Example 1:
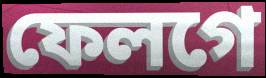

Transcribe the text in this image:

ফেলগে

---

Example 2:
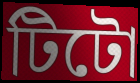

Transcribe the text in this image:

টিটো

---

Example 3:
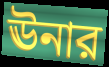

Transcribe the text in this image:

ঊনার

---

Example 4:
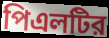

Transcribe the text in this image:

পিএলটির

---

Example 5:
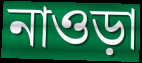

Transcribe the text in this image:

নাওড়া